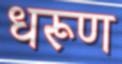
धरूण